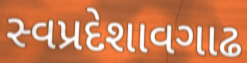
સ્વપ્રદેશાવગાઢ